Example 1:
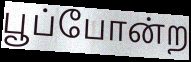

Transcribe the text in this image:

பூப்போன்ற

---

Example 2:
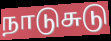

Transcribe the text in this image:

நாடுசுடு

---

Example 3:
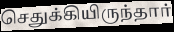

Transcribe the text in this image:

செதுக்கியிருந்தார்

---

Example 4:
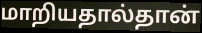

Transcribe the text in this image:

மாறியதால்தான்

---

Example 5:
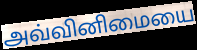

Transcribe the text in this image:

அவ்வினிமையை